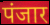
पंजार